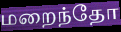
மறைந்தோ